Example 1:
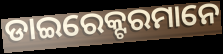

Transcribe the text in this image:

ଡାଇରେକ୍ଟରମାନେ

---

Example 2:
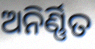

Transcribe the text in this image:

ଅନିର୍ଣ୍ଣିତ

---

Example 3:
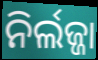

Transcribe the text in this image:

ନିର୍ଲଜ୍ଜା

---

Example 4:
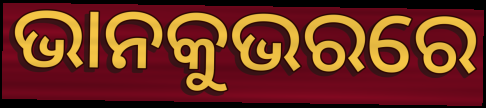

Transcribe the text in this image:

ଭାନକୁଭରରେ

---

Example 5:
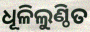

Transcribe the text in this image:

ଧୂଳିଲୁଣ୍ଠିତ